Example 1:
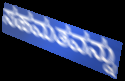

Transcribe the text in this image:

ಸಹಮತವನ್ನು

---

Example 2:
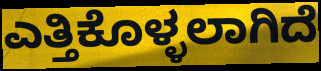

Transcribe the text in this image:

ಎತ್ತಿಕೊಳ್ಳಲಾಗಿದೆ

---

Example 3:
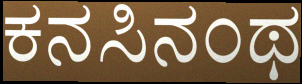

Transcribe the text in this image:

ಕನಸಿನಂಥ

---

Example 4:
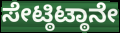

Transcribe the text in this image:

ಸೇಟ್ಠಿಟ್ಠಾನೇ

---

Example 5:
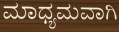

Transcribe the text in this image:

ಮಾಧ್ಯಮವಾಗಿ